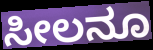
ಸೀಲನೂ